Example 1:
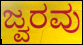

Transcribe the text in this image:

ಜ್ವರವು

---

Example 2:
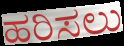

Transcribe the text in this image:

ಹರಿಸಲು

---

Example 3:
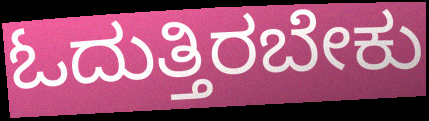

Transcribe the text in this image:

ಓದುತ್ತಿರಬೇಕು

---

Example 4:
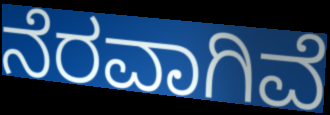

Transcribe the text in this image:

ನೆರವಾಗಿವೆ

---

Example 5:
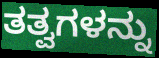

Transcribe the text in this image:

ತತ್ವಗಳನ್ನು